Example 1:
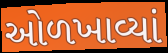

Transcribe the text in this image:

ઓળખાવ્યાં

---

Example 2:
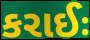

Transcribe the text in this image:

કરાઈઃ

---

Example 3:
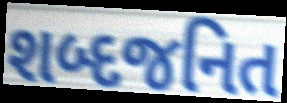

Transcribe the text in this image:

શબ્દજનિત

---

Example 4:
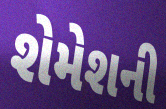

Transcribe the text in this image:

શેમેશની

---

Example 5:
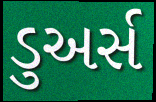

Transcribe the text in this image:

ડુઅર્સ